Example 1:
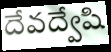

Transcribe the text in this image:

దేవద్వేషి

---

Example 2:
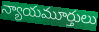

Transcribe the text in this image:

న్యాయమూర్తులు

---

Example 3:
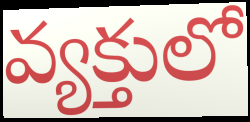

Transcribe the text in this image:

వ్యక్తులో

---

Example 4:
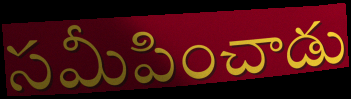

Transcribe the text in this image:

సమీపించాడు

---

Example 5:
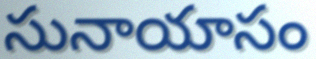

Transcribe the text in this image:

సునాయాసం